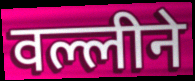
वल्लीने